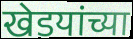
खेडयांच्या